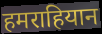
हमराहियान